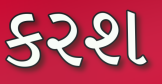
કરશ